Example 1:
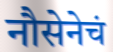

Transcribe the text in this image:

नौसेनेचं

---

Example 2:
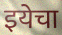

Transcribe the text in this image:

इयेचा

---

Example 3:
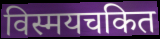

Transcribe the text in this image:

विस्मयचकित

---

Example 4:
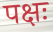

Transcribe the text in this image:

पक्षः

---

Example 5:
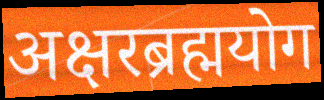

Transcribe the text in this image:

अक्षरब्रह्मयोग